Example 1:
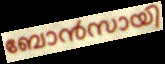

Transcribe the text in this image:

ബോൻസായി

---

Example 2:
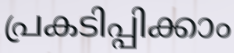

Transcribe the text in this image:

പ്രകടിപ്പിക്കാം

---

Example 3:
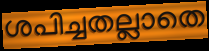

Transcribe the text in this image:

ശപിച്ചതല്ലാതെ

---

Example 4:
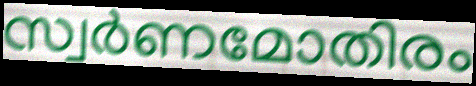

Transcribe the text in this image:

സ്വർണമോതിരം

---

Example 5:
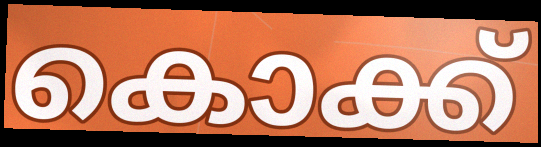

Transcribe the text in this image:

കൊക്ക്